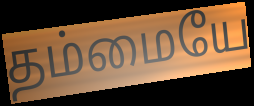
தம்மையே